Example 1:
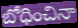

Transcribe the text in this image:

బోధించినా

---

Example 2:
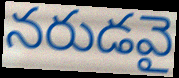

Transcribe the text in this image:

నరుడవై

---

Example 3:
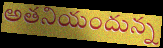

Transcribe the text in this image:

అతనియందున్న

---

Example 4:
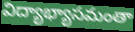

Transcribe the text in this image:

విద్యాభ్యాసమంతా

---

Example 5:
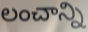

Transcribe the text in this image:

లంచాన్ని